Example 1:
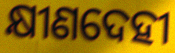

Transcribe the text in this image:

କ୍ଷୀଣଦେହୀ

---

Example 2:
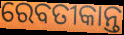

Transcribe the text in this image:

ରେବତୀକାନ୍ତ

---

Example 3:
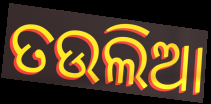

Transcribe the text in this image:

ତଉଲିଆ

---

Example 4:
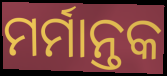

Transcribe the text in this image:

ମର୍ମାନ୍ତକ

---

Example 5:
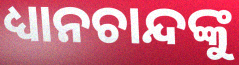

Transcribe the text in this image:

ଧ୍ୟାନଚାନ୍ଦଙ୍କୁ